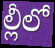
ల్లీలో